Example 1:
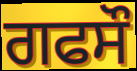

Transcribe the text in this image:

ਗਫਸੌ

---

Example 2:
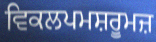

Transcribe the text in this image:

ਵਿਕਲਪਮਸ਼ਰੂਮਜ਼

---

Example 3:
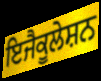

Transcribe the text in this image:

ਇਜੈਕੂਲੇਸ਼ਨ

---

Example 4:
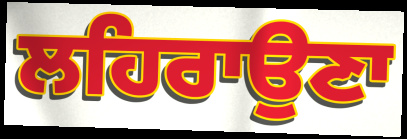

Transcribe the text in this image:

ਲਹਿਰਾਉਣਾ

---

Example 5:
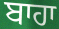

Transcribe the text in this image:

ਬਾਹਾ